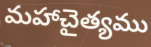
మహాచైత్యము